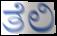
ತೆಲಿ